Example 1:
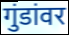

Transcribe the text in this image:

गुंडांवर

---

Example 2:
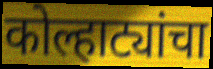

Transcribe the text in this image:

कोल्हाट्यांचा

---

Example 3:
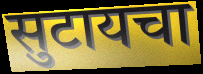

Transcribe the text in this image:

सुटायचा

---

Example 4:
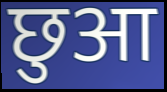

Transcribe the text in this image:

छुआ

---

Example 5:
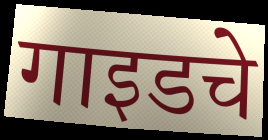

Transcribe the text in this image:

गाइडचे